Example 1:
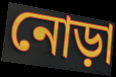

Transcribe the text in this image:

নোড়া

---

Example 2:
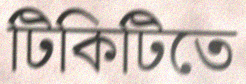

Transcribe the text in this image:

টিকিটিতে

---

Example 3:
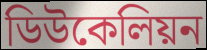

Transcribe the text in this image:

ডিউকেলিয়ন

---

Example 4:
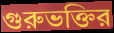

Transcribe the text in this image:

গুরুভক্তির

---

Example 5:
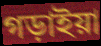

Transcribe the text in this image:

গড়াইয়া